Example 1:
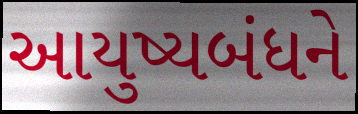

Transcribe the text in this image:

આયુષ્યબંધને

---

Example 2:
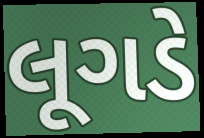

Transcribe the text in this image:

લૂગડે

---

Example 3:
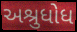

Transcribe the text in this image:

અશ્રુધોધ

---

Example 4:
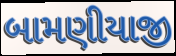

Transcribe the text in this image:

બામણીયાજી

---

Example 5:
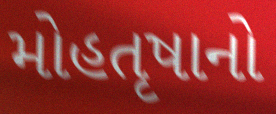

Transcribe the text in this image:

મોહતૃષાનો